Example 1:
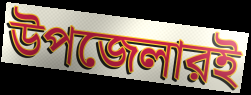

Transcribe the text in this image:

উপজেলারই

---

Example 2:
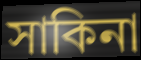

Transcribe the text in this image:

সাকিনা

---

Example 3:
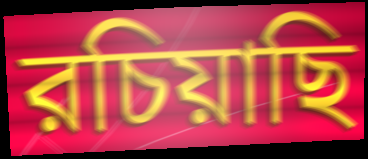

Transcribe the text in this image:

রচিয়াছি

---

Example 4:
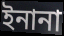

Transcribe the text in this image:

ইনানা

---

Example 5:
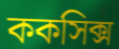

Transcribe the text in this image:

ককসিক্স